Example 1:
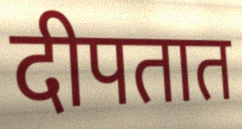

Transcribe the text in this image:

दीपतात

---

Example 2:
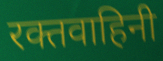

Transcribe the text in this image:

रक्तवाहिनी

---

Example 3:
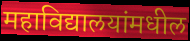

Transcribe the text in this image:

महाविद्यालयांमधील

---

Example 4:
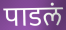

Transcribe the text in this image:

पाडलं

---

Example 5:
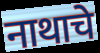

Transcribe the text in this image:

नाथाचे